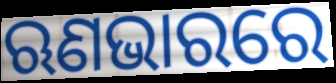
ଋଣଭାରରେ